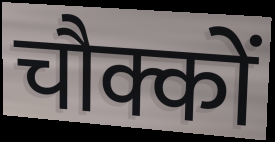
चौक्कों